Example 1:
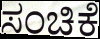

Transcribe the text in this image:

ಸಂಚಿಕೆ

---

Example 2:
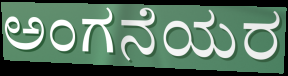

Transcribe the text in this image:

ಅಂಗನೆಯರ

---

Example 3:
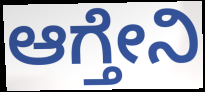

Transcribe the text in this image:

ಆಗ್ತೇನಿ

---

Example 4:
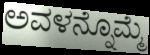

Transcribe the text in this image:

ಅವಳನ್ನೊಮ್ಮೆ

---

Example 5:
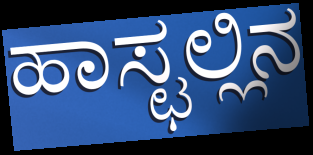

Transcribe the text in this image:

ಹಾಸ್ಟಲ್ಲಿನ